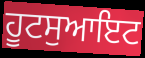
ਹੂਟਸੁਆਇਟ